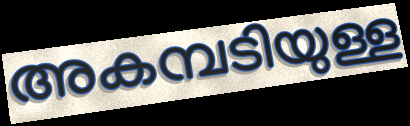
അകമ്പടിയുള്ള